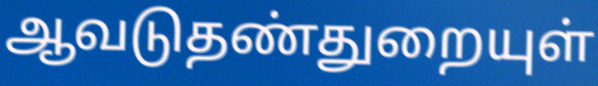
ஆவடுதண்துறையுள்